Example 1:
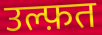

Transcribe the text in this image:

उल्फ़त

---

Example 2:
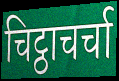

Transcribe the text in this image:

चिट्ठाचर्चा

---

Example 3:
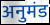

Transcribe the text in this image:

अनुमंड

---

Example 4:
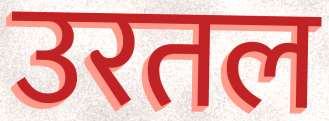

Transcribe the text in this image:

उरतल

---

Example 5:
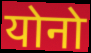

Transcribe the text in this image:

योनो